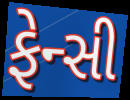
ફેન્સી